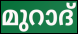
മുറാദ്